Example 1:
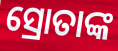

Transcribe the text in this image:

ସ୍ରୋତାଙ୍କ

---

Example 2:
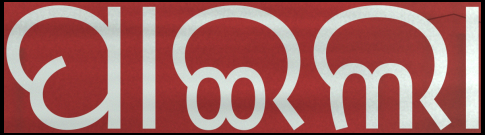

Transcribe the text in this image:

ପାଇଲା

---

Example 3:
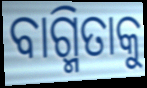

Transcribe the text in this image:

ବାଗ୍ମିତାକୁ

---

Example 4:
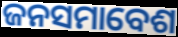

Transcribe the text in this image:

ଜନସମାବେଶ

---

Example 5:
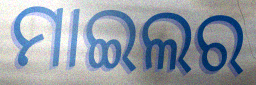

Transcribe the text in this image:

ମାଇଲର